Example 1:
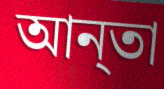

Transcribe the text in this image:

আন্‌তা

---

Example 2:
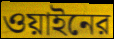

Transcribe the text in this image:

ওয়াইনের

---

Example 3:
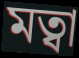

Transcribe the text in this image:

মত্বা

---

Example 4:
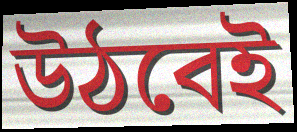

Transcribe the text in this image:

উঠবেই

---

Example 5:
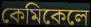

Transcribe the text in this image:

কেমিকেলে